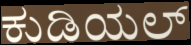
ಕುಡಿಯಲ್